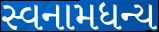
સ્વનામધન્ય